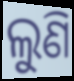
ଲୁଣି